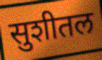
सुशीतल